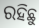
ରହିଛୁ